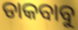
ଡାକବାବୁ